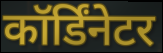
कॉर्डिंनेटर